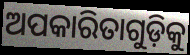
ଅପକାରିତାଗୁଡ଼ିକୁ